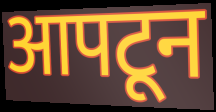
आपटून